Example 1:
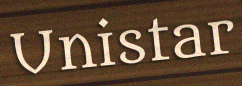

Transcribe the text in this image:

Unistar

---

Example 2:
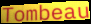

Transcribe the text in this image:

Tombeau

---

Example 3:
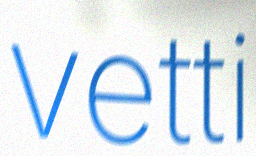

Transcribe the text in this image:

vetti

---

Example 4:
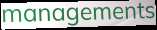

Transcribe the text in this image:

managements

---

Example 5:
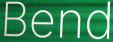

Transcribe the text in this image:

Bend